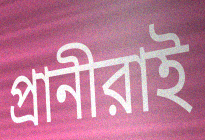
প্রানীরাই